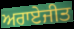
ਅਰਾਏਜੀਤ